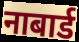
नाबार्ड